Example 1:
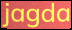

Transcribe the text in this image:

jagda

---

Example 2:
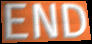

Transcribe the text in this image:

END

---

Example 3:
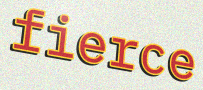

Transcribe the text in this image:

fierce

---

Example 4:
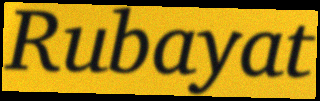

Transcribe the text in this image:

Rubayat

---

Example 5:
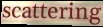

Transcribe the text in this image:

scattering